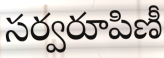
సర్వరూపిణీ